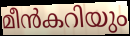
മീൻകറിയും